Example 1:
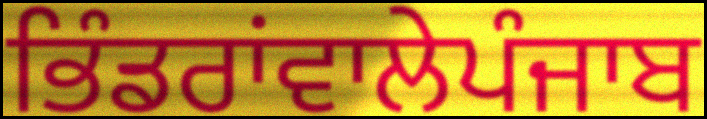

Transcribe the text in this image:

ਭਿੰਡਰਾਂਵਾਲੇਪੰਜਾਬ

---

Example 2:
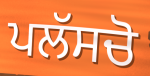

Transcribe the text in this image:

ਪਲੱਸਚੋ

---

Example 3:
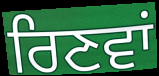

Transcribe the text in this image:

ਰਿਣਵਾਂ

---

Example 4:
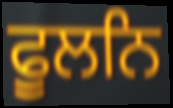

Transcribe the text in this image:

ਫੂਲਨਿ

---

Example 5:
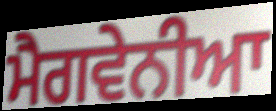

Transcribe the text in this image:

ਮੈਗਵੇਨੀਆ